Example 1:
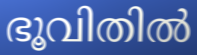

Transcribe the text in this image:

ഭൂവിതിൽ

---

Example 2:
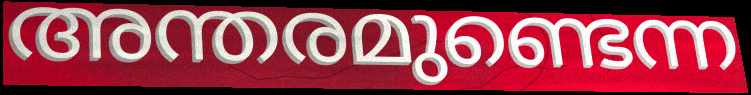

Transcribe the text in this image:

അന്തരമുണ്ടെന്ന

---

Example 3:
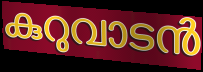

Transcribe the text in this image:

കുറുവാടൻ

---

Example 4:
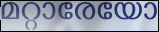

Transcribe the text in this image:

മറ്റാരേയോ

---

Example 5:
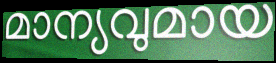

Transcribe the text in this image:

മാന്യവുമായ